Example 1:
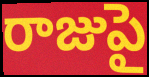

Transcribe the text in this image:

రాజుపై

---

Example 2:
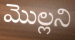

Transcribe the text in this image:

మొల్లని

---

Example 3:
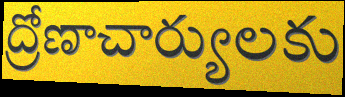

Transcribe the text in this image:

ద్రోణాచార్యులకు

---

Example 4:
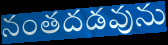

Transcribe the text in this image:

నంతదడవును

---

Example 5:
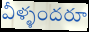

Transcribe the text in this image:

వీళ్ళందరూ